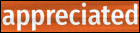
appreciated